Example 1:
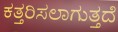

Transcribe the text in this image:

ಕತ್ತರಿಸಲಾಗುತ್ತದೆ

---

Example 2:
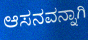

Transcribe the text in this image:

ಆಸನವನ್ನಾಗಿ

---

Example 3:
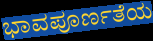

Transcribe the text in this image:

ಭಾವಪೂರ್ಣತೆಯ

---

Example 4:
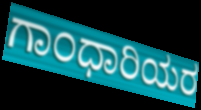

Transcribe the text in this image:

ಗಾಂಧಾರಿಯರ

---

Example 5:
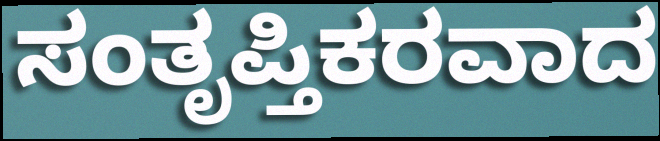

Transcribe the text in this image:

ಸಂತೃಪ್ತಿಕರವಾದ